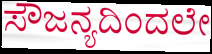
ಸೌಜನ್ಯದಿಂದಲೇ